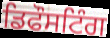
ਡਿਫੌਸਟਿੰਗ